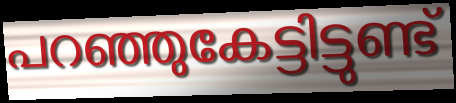
പറഞ്ഞുകേട്ടിട്ടുണ്ട്